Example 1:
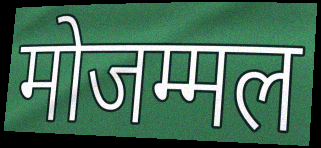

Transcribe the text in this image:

मोजम्मल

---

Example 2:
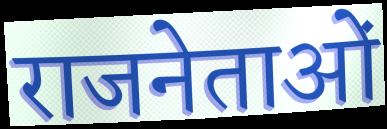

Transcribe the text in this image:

राजनेताओं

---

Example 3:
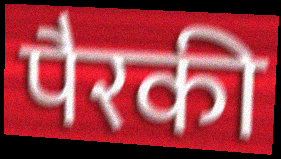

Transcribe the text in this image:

पैरकी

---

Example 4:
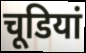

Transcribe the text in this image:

चूडियां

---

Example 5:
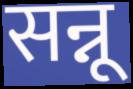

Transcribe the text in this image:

सन्नू